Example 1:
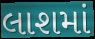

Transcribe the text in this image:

લાશમાં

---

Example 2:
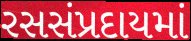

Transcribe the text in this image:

રસસંપ્રદાયમાં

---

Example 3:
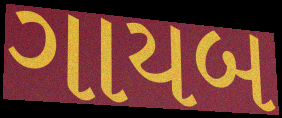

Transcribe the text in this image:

ગાયબ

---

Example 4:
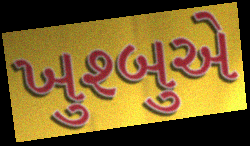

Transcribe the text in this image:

ખુશ્બુએ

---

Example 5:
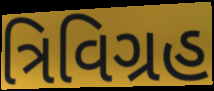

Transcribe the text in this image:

ત્રિવિગ્રહ